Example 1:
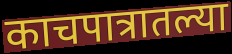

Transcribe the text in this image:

काचपात्रातल्या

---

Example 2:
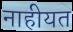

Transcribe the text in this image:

नाहीयत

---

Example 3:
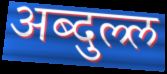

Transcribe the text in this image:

अब्दुल्ल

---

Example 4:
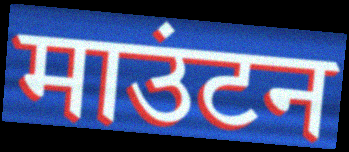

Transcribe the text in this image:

माउंटन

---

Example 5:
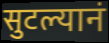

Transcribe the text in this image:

सुटल्यानं